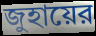
জুহায়ের